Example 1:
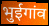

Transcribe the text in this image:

भुईगांव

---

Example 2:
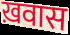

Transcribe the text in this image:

ख़वास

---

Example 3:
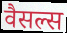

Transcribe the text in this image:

वैसल्स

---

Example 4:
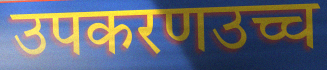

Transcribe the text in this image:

उपकरणउच्च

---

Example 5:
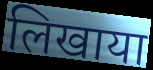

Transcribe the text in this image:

लिखाया